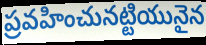
ప్రవహించునట్టియునైన